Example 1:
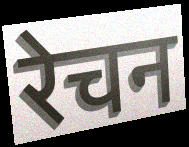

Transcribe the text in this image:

रेचन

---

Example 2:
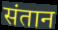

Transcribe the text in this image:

संतान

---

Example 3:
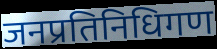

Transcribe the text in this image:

जनप्रतिनिधिगण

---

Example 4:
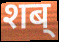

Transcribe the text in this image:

शब्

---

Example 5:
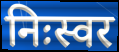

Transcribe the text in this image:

निःस्वर